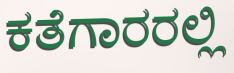
ಕತೆಗಾರರಲ್ಲಿ